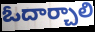
ఓదార్చాలి